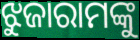
ଝୁଜାରାମଙ୍କୁ